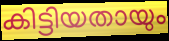
കിട്ടിയതായും